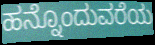
ಹನ್ನೊಂದುವರೆಯ